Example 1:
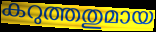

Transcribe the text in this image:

കറുത്തതുമായ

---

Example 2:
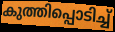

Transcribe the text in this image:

കുത്തിപ്പൊടിച്ച്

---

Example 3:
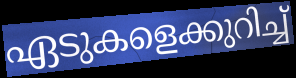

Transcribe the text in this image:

ഏടുകളെക്കുറിച്ച്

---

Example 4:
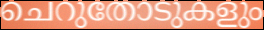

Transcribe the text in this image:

ചെറുതോടുകളും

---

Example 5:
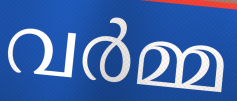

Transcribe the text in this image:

വർമ്മ